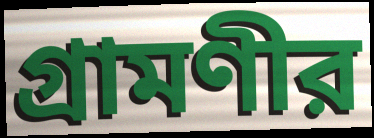
গ্রামণীর